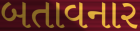
બતાવનાર